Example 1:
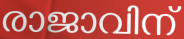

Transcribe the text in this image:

രാജാവിന്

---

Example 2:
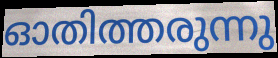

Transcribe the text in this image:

ഓതിത്തരുന്നു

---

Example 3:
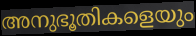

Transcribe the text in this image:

അനുഭൂതികളെയും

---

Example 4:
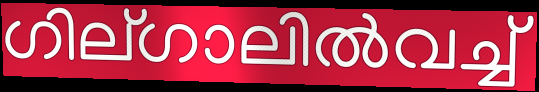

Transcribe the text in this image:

ഗില്ഗാലിൽവച്ച്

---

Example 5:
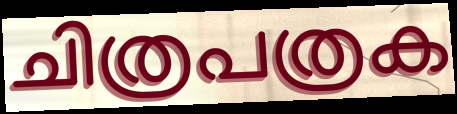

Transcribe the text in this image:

ചിത്രപത്രക